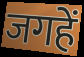
जगहें